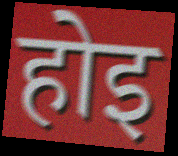
होइ